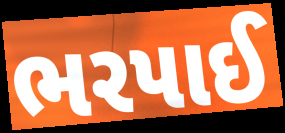
ભરપાઈ